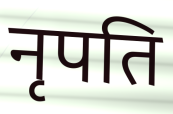
नृपति